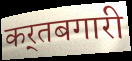
कर्तबगारी